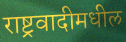
राष्ट्रवादीमधील